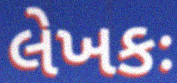
લેખકઃ